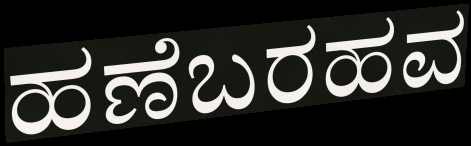
ಹಣೆಬರಹವ